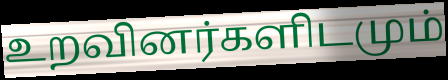
உறவினர்களிடமும்